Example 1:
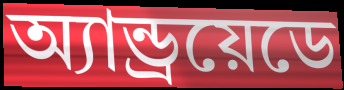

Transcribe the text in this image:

অ্যান্ড্রয়েডে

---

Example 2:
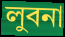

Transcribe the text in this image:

লুবনা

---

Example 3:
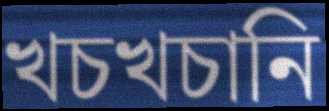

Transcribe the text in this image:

খচখচানি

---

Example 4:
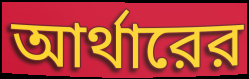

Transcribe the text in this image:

আর্থারের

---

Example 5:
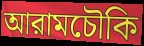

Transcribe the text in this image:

আরামচৌকি